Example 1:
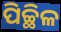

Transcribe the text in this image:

ପିଚ୍ଛିଳ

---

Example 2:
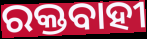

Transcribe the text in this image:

ରକ୍ତବାହୀ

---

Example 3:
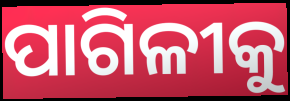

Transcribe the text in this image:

ପାଗିଳୀକୁ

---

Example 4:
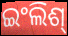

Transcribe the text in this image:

ଇଂଲିଶ୍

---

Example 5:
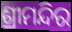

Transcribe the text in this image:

ଶ୍ରୀମନ୍ଦିର